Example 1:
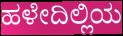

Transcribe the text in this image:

ಹಳೇದಿಲ್ಲಿಯ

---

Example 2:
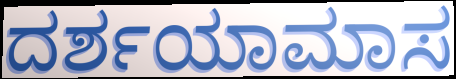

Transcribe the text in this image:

ದರ್ಶಯಾಮಾಸ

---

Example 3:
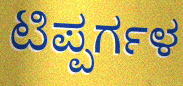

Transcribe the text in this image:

ಟಿಪ್ಪರ್ಗಳ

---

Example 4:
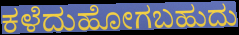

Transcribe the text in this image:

ಕಳೆದುಹೋಗಬಹುದು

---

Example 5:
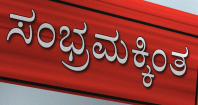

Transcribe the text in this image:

ಸಂಭ್ರಮಕ್ಕಿಂತ